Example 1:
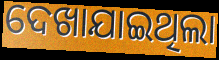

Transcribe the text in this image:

ଦେଖାଯାଇଥିଲା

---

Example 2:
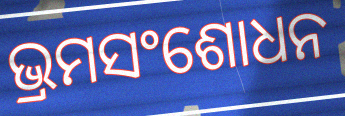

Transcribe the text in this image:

ଭ୍ରମସଂଶୋଧନ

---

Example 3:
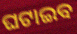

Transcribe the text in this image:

ଘଟାଇବ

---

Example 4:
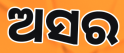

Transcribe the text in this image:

ଅସର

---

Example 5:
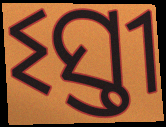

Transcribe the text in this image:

ଽସ୍ତୀ